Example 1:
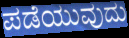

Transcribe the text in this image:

ಪಡೆಯುವುದು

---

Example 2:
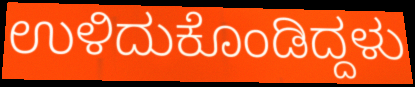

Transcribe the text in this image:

ಉಳಿದುಕೊಂಡಿದ್ದಳು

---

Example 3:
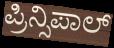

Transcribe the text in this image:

ಪ್ರಿನ್ಸಿಪಾಲ್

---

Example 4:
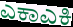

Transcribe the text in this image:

ಎಕಾಎಕಿ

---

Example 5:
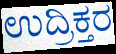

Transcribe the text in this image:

ಉದ್ರಿಕ್ತರ